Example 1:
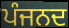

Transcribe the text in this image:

ਪੰਜਨਦ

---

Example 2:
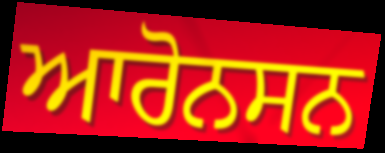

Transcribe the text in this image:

ਆਰੋਨਸਨ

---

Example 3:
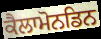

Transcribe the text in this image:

ਕੈਲਾਮੋਨਡਿਨ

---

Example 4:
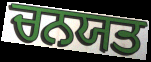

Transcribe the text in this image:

ਚਨਯਤ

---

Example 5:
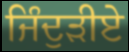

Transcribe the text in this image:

ਜਿੰਦੁੜੀਏ